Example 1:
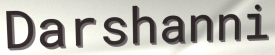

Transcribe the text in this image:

Darshanni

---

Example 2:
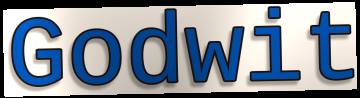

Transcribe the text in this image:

Godwit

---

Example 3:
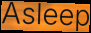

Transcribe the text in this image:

Asleep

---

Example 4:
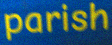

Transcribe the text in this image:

parish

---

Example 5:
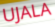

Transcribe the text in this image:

UJALA